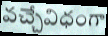
వచ్చేవిధంగా